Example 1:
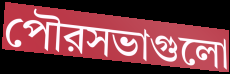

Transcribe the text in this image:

পৌরসভাগুলো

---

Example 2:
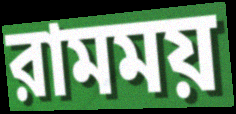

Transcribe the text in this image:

রামময়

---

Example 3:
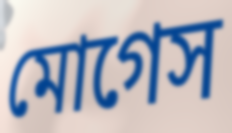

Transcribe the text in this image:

মোগেস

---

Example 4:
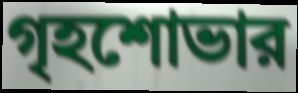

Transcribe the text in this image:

গৃহশোভার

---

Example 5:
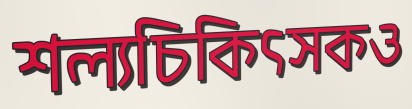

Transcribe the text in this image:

শল্যচিকিৎসকও